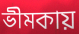
ভীমকায়